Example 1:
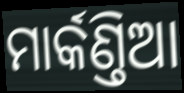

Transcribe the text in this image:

ମାର୍କଣ୍ତିଆ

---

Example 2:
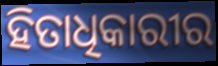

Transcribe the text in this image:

ହିତାଧିକାରୀର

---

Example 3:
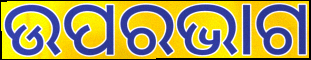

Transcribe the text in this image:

ଉପରଭାଗ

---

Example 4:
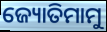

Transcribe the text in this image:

ଜ୍ୟୋତିମାମୁ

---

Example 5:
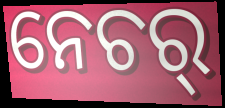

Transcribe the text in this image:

ନେଚର୍